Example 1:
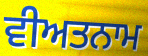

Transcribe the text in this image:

ਵੀਅਤਨਾਮ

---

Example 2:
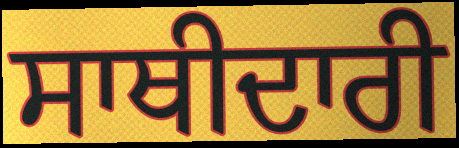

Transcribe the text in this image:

ਸਾਥੀਦਾਰੀ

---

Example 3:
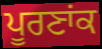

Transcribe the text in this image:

ਪੂਰਣਾਂਕ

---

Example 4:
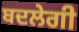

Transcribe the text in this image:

ਬਦਲੇਗੀ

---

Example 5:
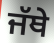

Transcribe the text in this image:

ਜੱਥੇ